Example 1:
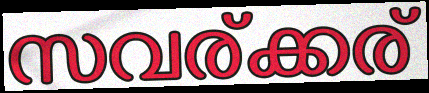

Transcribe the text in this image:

സവര്ക്കര്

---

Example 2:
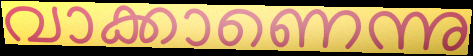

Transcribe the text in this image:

വാക്കാണെന്നു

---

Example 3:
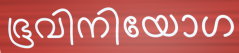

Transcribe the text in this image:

ഭൂവിനിയോഗ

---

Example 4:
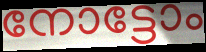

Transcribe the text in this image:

നോട്ടോം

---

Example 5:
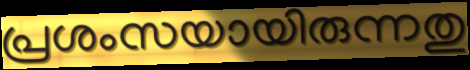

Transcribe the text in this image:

പ്രശംസയായിരുന്നതു